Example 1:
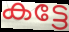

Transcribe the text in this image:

കട്ടേ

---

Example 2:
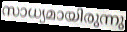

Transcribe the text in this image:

സാധ്യമായിരുന്നു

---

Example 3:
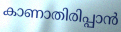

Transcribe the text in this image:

കാണാതിരിപ്പാൻ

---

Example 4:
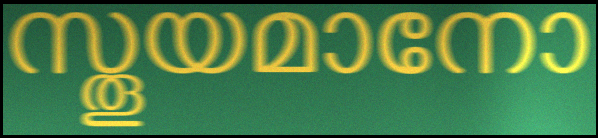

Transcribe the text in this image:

സ്തൂയമാനോ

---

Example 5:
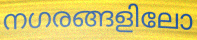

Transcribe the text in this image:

നഗരങ്ങളിലോ